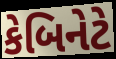
કેબિનેટે